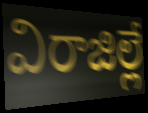
విరాజిల్లే